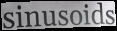
sinusoids